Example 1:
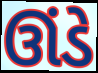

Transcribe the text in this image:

ઊંડે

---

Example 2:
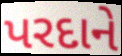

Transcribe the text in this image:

પરદાને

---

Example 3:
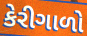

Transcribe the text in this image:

કેરીગાળો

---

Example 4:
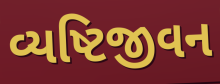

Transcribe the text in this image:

વ્યષ્ટિજીવન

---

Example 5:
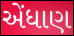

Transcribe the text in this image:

એંધાણ